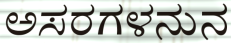
ಅಸರಗಳನುನ